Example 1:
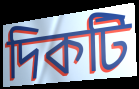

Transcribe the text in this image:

দিকটি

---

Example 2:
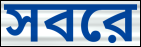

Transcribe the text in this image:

সবরে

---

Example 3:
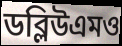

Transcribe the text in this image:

ডব্লিউএমও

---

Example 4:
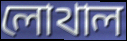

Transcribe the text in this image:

লোথাল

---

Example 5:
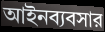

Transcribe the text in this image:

আইনব্যবসার